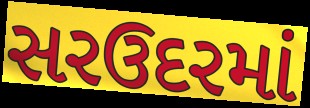
સરઉદરમાં